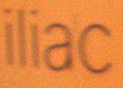
iliac